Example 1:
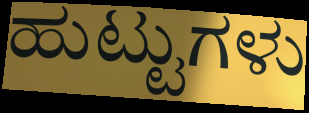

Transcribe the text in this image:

ಹುಟ್ಟುಗಳು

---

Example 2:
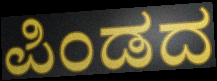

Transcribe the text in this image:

ಪಿಂಡದ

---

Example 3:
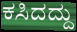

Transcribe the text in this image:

ಕಸಿದದ್ದು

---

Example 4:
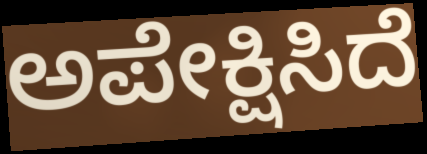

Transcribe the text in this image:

ಅಪೇಕ್ಷಿಸಿದೆ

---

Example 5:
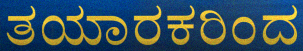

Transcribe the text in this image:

ತಯಾರಕರಿಂದ